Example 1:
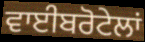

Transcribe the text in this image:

ਵਾਈਬਰੋਟੇਲਾਂ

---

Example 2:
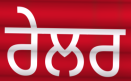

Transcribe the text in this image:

ਰੇਲਰ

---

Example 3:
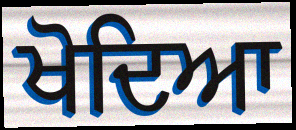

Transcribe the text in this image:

ਖੋਦਿਆ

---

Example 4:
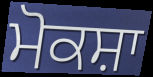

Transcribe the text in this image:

ਮੋਕਸ਼ਾ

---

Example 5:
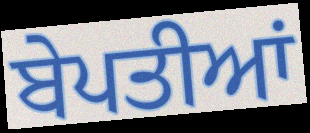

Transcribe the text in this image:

ਬੇਪਤੀਆਂ